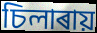
চিলাৰায়